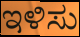
ಇಳಿಸು